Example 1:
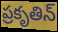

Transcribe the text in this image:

ప్రకృతిన్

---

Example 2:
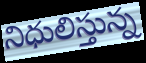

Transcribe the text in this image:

నిధులిస్తున్న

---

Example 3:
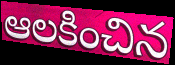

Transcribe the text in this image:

ఆలకించిన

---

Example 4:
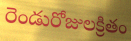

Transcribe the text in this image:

రెండురోజులక్రితం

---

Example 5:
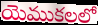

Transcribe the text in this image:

యెముకలలో